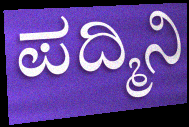
ಪದ್ಮಿನಿ